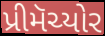
પ્રીમૅચ્યોર